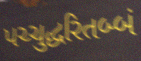
પચ્ચુદ્ધરિતબ્બં